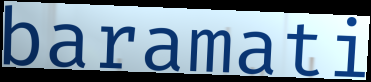
baramati